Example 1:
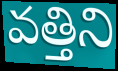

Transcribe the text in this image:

వత్తిని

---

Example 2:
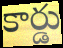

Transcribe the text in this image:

కార్డు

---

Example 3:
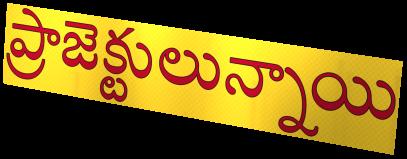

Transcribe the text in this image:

ప్రాజెక్టులున్నాయి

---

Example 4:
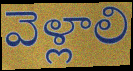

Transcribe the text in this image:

వెళ్లాలి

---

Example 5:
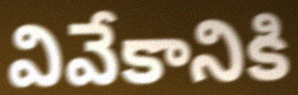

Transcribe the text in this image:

వివేకానికి